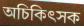
অচিকিৎসক